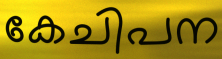
കേചിപന